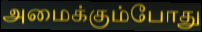
அமைக்கும்போது